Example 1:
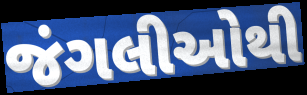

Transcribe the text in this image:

જંગલીઓથી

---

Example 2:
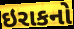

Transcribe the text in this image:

ઇરાકનો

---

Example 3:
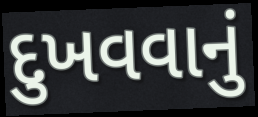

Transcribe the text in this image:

દુખવવાનું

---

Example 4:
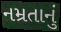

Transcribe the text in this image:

નમ્રતાનું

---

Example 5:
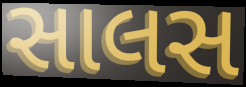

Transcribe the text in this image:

સાલસ